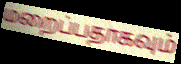
மறைப்பதாகவும்